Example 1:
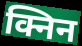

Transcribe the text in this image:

क्निन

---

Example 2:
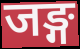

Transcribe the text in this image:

जङ्ग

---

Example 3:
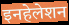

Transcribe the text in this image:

इनहेलेशन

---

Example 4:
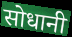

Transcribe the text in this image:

सोधानी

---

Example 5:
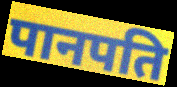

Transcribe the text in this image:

पानपति